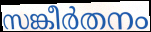
സങ്കീർതനം